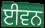
ਈਵਨ